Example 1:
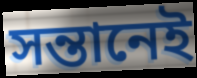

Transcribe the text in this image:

সন্তানেই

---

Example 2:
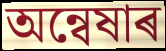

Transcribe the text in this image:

অন্বেষাৰ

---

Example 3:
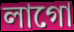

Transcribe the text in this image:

লাগো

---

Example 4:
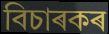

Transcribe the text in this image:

বিচাৰকৰ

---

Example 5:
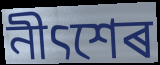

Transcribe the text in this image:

নীৎশেৰ